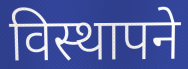
विस्थापने